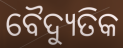
ବୈଦ୍ୟୁତିକ